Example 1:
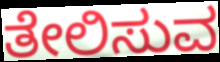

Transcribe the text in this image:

ತೇಲಿಸುವ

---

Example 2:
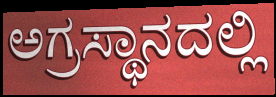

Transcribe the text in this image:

ಅಗ್ರಸ್ಥಾನದಲ್ಲಿ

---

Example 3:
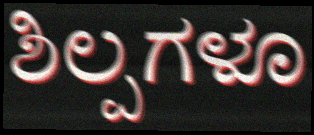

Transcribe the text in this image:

ಶಿಲ್ಪಗಳೂ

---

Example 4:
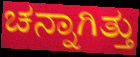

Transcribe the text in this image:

ಚನ್ನಾಗಿತ್ತು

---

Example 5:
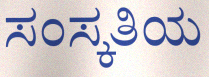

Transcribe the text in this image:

ಸಂಸ್ಕತಿಯ